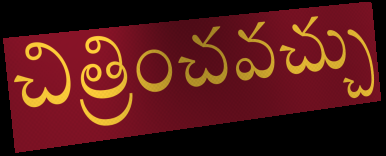
చిత్రించవచ్చు